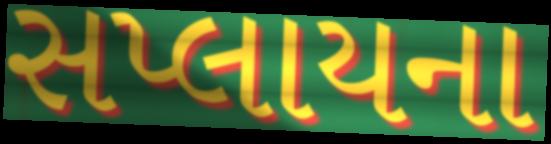
સપ્લાયના